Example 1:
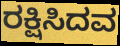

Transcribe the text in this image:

ರಕ್ಷಿಸಿದವ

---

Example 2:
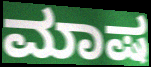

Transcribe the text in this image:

ಮಾಷ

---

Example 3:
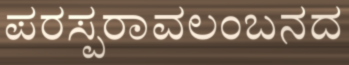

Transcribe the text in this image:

ಪರಸ್ಪರಾವಲಂಬನದ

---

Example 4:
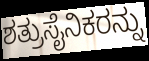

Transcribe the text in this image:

ಶತ್ರುಸೈನಿಕರನ್ನು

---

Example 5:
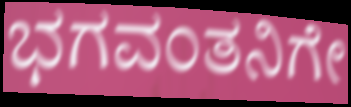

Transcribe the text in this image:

ಭಗವಂತನಿಗೇ